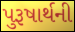
પુરૂષાર્થની